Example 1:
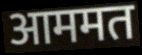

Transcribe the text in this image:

आममत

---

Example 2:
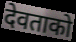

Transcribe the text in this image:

देवताको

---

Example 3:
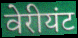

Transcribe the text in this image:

वेरीयंट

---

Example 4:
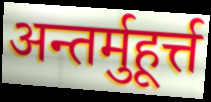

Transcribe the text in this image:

अन्तर्मुहूर्त्त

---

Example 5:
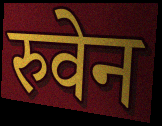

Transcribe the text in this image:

रुवेन